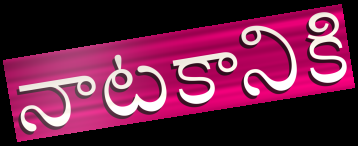
నాటకానికి